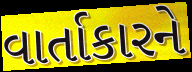
વાર્તાકારને